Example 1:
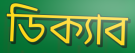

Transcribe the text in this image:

ডিক্যাব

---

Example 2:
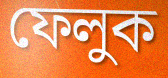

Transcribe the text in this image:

ফেলুক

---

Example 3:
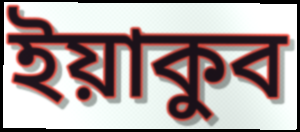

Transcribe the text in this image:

ইয়াকুব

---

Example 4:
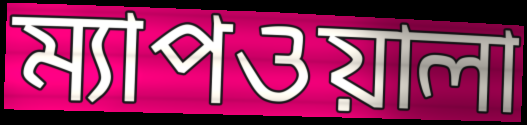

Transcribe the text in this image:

ম্যাপওয়ালা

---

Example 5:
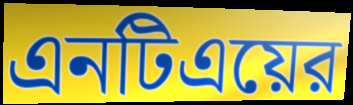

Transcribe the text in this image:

এনটিএয়ের